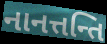
નાનત્તન્તિ